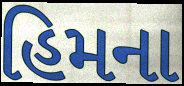
હિમના